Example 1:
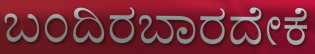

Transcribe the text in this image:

ಬಂದಿರಬಾರದೇಕೆ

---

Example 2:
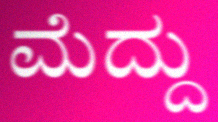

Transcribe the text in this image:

ಮೆದ್ದು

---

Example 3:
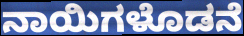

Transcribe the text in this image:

ನಾಯಿಗಳೊಡನೆ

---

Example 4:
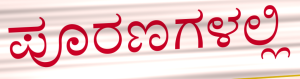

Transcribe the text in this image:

ಪೂರಣಗಳಲ್ಲಿ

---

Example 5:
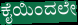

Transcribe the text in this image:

ಕೈಯಿಂದಲೇ